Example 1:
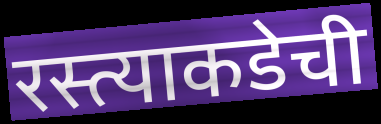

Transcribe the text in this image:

रस्त्याकडेची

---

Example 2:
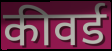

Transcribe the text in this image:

कीवर्ड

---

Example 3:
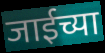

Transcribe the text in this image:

जाईच्या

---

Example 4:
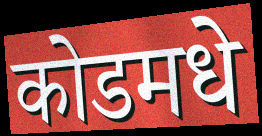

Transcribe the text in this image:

कोडमधे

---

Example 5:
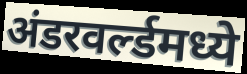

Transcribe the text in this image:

अंडरवर्ल्डमध्ये